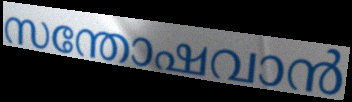
സന്തോഷവാൻ